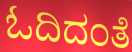
ಓದಿದಂತೆ